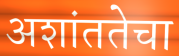
अशांततेचा